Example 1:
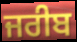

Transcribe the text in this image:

ਜਰੀਬ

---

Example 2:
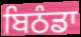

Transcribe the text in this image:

ਬਿਠੰਡਾ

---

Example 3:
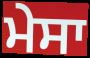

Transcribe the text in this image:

ਮੇਸਾ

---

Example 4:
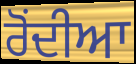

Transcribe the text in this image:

ਰੋਂਦੀਆ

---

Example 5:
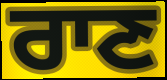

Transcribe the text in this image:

ਰਾਣ